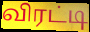
விரட்டி